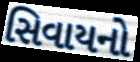
સિવાયનો